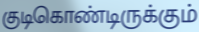
குடிகொண்டிருக்கும்